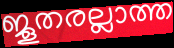
ജൂതരല്ലാത്ത